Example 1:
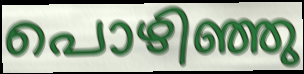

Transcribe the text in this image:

പൊഴിഞ്ഞു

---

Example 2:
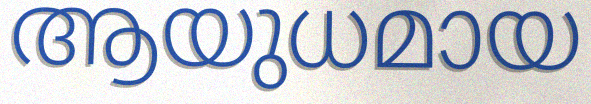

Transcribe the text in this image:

ആയുധമായ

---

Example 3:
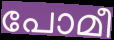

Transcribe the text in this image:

പോമീ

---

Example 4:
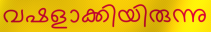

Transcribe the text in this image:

വഷളാക്കിയിരുന്നു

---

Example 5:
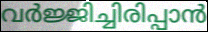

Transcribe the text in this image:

വർജ്ജിച്ചിരിപ്പാൻ